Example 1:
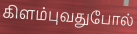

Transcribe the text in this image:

கிளம்புவதுபோல்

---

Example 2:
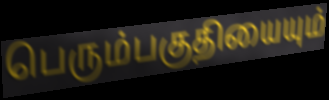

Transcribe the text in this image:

பெரும்பகுதியையும்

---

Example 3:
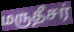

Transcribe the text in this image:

மருதீசர்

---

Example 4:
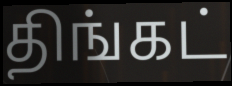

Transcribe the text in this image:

திங்கட்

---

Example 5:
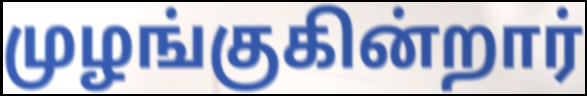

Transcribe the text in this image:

முழங்குகின்றார்